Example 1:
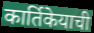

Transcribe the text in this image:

कार्तिकेयाची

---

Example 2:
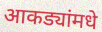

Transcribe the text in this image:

आकड्यांमधे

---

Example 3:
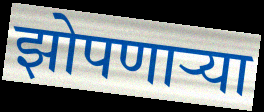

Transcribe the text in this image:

झोपणाऱ्या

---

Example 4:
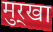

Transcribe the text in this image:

मुर्खा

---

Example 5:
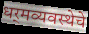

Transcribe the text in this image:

धर्मव्यवस्थेचे